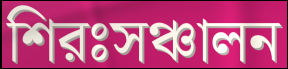
শিরঃসঞ্চালন